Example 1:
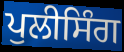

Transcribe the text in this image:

ਪੁਲੀਸਿੰਗ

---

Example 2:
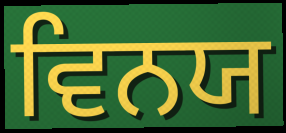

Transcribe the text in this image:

ਵਿਨਯ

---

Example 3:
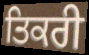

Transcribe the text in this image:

ਤਿਕਰੀ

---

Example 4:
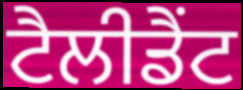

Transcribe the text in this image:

ਟੈਲੀਡੈਂਟ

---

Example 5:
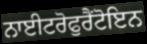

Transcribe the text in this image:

ਨਾਈਟਰੋਫੁਰੈਂਟੋਇਨ